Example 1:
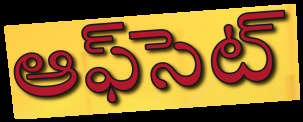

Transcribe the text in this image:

ఆఫ్‌సెట్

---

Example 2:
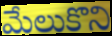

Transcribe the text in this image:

మేలుకొని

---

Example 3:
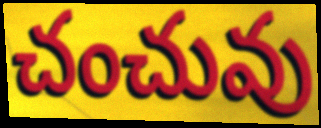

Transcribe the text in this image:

చంచువు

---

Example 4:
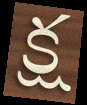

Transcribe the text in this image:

క్ష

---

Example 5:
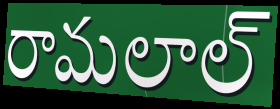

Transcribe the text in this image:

రామలాల్